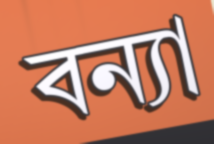
বন্যা